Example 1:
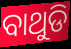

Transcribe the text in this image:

ବାଥୁଡି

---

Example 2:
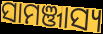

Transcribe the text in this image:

ସାମଞ୍ଜାସ୍ୟ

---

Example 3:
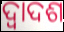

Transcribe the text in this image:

ଦ୍ଵାଦଶ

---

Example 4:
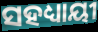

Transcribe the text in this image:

ସହଧ୍ୟାୟୀ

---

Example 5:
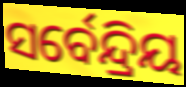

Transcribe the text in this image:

ସର୍ବେନ୍ଦ୍ରିୟ